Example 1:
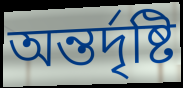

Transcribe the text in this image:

অন্তর্দৃষ্টি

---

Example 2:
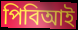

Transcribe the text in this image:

পিবিআই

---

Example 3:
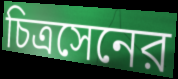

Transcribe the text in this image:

চিত্রসেনের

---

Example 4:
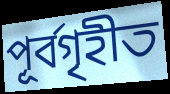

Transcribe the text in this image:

পূর্বগৃহীত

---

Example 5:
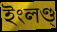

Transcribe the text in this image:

ইংলণ্ড্